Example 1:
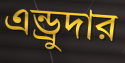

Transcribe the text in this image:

এন্ড্রুদার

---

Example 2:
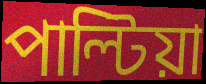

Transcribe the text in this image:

পাল্টিয়া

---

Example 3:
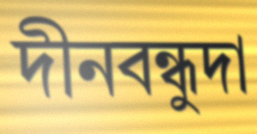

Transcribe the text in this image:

দীনবন্ধুদা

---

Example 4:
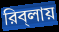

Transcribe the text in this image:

রিব্‌লায়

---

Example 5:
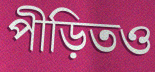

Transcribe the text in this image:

পীড়িতও